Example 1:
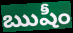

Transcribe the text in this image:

ఋషీం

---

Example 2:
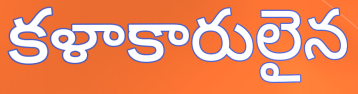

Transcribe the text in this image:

కళాకారులైన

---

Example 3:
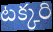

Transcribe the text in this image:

టక్కరి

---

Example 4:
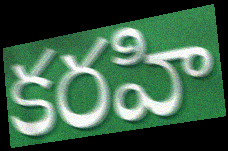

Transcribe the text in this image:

కరహి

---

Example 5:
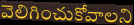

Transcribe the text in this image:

వెలిగించుకోవాలని